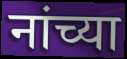
नांच्या